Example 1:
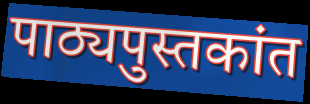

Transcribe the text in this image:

पाठ्यपुस्तकांत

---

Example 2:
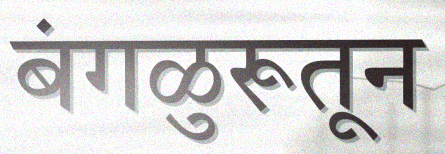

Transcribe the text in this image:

बंगळुरूतून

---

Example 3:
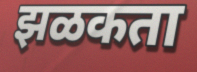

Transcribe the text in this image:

झळकता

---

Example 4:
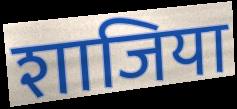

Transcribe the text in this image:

शाजिया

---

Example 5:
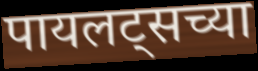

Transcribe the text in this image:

पायलट्सच्या